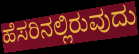
ಹೆಸರಿನಲ್ಲಿರುವುದು